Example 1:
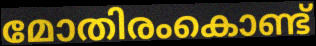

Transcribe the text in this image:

മോതിരംകൊണ്ട്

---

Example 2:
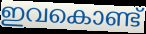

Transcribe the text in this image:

ഇവകൊണ്ട്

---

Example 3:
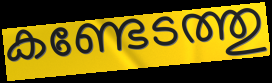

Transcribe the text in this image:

കണ്ടേടത്തു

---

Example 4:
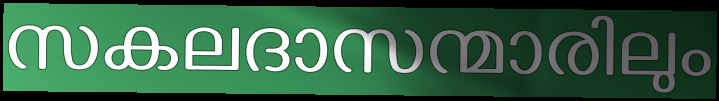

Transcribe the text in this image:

സകലദാസന്മാരിലും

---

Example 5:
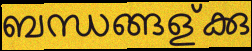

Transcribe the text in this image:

ബന്ധങ്ങള്ക്കു